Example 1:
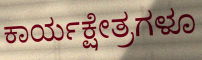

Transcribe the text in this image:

ಕಾರ್ಯಕ್ಷೇತ್ರಗಳೂ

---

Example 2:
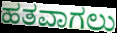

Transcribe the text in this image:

ಹತವಾಗಲು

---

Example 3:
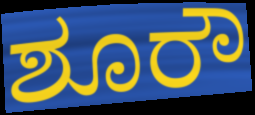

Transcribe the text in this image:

ಶೂರೌ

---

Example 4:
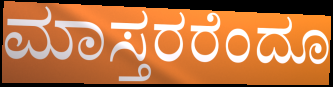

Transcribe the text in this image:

ಮಾಸ್ತರರೆಂದೂ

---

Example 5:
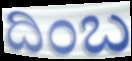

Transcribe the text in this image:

ದಿಂಬ